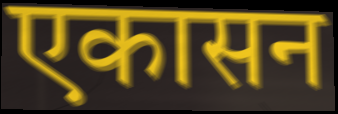
एकासन